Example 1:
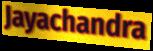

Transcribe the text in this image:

Jayachandra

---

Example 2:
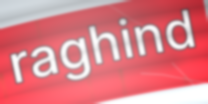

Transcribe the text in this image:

raghind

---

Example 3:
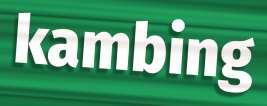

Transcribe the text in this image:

kambing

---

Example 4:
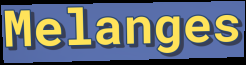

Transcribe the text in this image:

Melanges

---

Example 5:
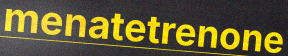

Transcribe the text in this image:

menatetrenone